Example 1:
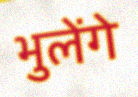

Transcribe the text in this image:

भुलेंगे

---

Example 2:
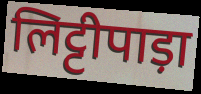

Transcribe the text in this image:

लिट्टीपाड़ा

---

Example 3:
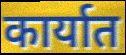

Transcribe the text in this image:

कार्यात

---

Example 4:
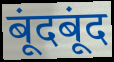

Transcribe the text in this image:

बूंदबूंद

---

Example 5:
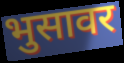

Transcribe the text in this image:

भुसावर